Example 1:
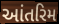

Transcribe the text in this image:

આંતરિમ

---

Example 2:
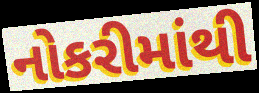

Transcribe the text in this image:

નોકરીમાંથી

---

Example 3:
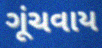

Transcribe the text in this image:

ગૂંચવાય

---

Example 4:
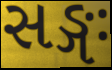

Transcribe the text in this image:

સઙ્ગઃ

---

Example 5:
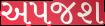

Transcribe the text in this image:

અપજશ